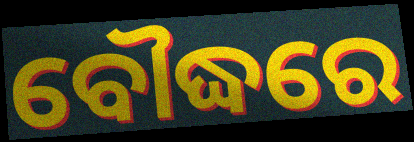
ବୌଦ୍ଧରେ